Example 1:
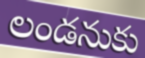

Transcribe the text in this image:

లండనుకు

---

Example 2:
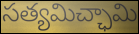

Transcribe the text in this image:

సత్యమిచ్ఛామి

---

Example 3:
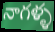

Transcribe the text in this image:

నాగళ్ళ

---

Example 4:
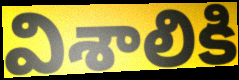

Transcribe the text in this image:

విశాలికి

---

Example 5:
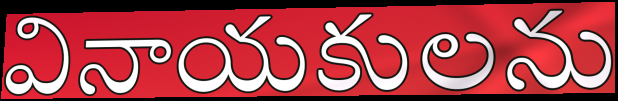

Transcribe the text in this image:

వినాయకులను